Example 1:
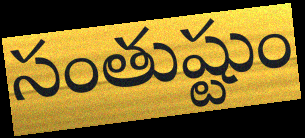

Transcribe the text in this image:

సంతుష్టుం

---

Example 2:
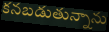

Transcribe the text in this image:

కనబడుతున్నాను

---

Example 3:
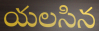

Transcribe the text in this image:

యలసిన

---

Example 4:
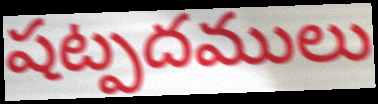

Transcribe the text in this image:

షట్పదములు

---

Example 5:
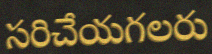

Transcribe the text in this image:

సరిచేయగలరు